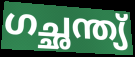
ഗച്ഛന്ത്യ്